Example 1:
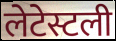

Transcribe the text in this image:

लेटेस्टली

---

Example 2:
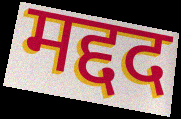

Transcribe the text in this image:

मद्दद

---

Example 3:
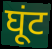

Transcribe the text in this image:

घूंट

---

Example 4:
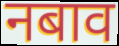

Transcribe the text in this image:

नबाव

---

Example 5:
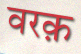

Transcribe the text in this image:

वरक़